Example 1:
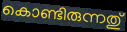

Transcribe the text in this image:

കൊണ്ടിരുന്നതു്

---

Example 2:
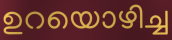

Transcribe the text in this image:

ഉറയൊഴിച്ച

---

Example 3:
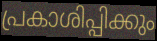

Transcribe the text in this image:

പ്രകാശിപ്പിക്കും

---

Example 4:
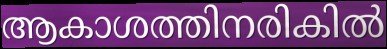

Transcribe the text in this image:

ആകാശത്തിനരികിൽ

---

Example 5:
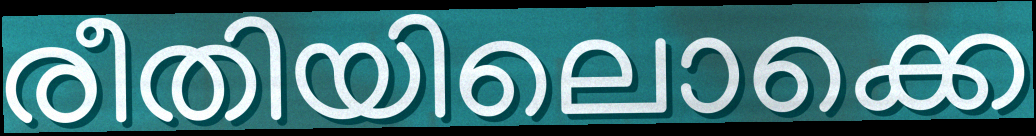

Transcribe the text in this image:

രീതിയിലൊക്കെ